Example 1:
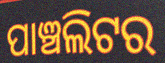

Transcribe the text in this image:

ପାଞ୍ଚଲିଟର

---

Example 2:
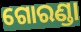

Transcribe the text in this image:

ଗୋରଣ୍ଡା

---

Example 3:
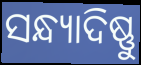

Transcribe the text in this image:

ସନ୍ଧ୍ୟାଦିଷ୍ଣୁ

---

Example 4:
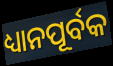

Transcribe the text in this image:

ଧ୍ୟାନପୂର୍ବକ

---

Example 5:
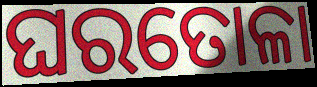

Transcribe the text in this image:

ଘରତୋଳା